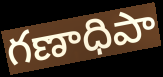
గణాధిపా